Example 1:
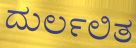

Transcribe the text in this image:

ದುರ್ಲಲಿತ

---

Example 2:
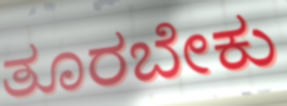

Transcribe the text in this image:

ತೂರಬೇಕು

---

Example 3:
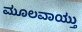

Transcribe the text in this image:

ಮೂಲವಾಯ್ತು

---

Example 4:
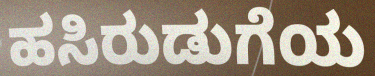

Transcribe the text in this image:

ಹಸಿರುಡುಗೆಯ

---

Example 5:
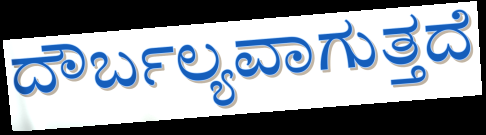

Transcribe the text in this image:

ದೌರ್ಬಲ್ಯವಾಗುತ್ತದೆ